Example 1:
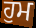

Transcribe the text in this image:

ਹੁਮ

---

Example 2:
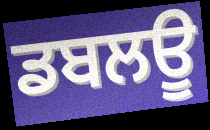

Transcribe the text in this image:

ਡਬਲਊ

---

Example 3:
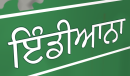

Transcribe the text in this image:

ਇੰਡੀਆਨਾ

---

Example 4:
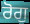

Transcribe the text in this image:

ਰੋਗੁ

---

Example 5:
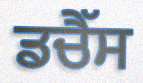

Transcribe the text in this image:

ਡਚੈੱਸ